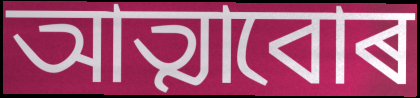
আত্মাবোৰ